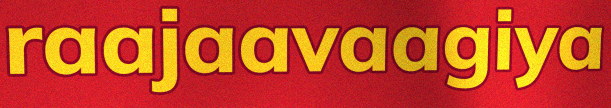
raajaavaagiya